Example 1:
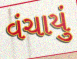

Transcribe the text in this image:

વંચાયું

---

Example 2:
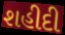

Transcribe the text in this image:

શહીદી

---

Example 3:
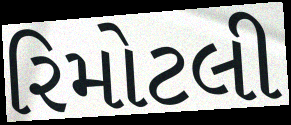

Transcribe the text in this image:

રિમોટલી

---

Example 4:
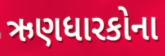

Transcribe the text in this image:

ઋણધારકોના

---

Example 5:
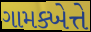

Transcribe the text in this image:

ગામક્ખેત્તે